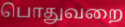
பொதுவறை